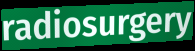
radiosurgery